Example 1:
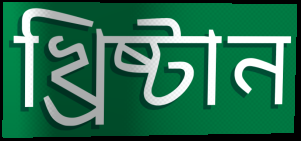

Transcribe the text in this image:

খ্রিষ্টান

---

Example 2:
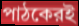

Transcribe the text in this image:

পাঠকেরই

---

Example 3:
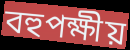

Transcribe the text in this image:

বহুপক্ষীয়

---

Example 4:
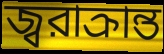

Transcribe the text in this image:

জ্বরাক্রান্ত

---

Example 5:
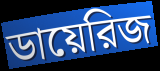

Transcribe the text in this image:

ডায়েরিজ